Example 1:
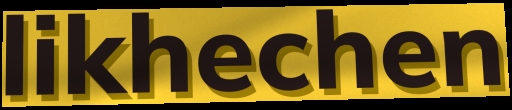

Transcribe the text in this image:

likhechen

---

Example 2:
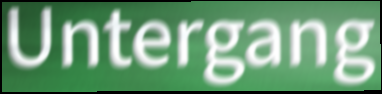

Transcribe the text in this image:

Untergang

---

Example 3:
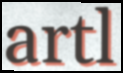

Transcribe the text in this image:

artl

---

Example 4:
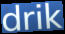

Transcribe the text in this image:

drik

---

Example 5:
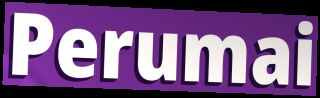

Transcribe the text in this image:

Perumai